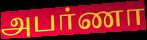
அபர்ணா